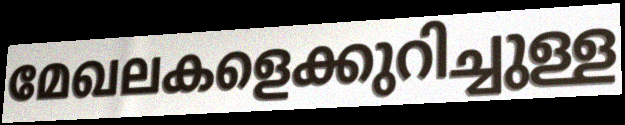
മേഖലകളെക്കുറിച്ചുള്ള